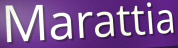
Marattia